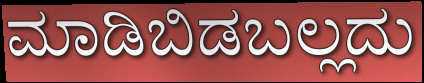
ಮಾಡಿಬಿಡಬಲ್ಲದು